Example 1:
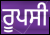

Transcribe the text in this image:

ਰੂਪਸੀ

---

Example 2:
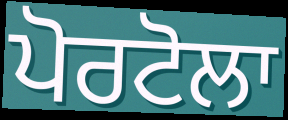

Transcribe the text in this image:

ਪੋਰਟੋਲਾ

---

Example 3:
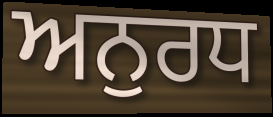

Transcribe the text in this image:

ਅਨੁਰਧ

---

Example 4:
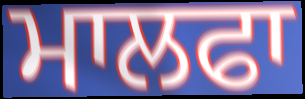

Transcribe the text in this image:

ਮਾਲਫਾ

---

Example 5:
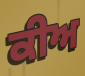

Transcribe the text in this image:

ਕੀਅ